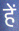
हें